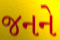
જનને